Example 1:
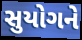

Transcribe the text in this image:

સુયોગને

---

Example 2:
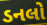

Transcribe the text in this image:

ડનલો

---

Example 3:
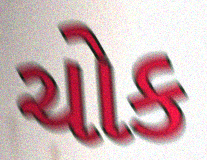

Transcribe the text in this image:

ચોક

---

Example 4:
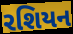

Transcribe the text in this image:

રશિયન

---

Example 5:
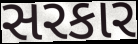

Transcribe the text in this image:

સરકાર